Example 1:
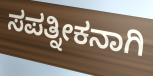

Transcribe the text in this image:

ಸಪತ್ನೀಕನಾಗಿ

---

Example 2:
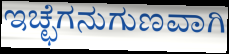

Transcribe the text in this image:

ಇಚ್ಛೆಗನುಗುಣವಾಗಿ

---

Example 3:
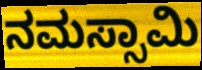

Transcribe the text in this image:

ನಮಸ್ಸಾಮಿ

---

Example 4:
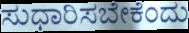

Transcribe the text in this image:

ಸುಧಾರಿಸಬೇಕೆಂದು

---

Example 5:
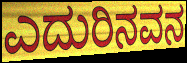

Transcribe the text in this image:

ಎದುರಿನವನ